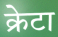
क्रेटा